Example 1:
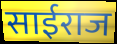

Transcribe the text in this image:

साईराज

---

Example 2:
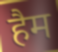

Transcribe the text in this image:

हैम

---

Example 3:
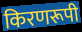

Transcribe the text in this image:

किरणरूपी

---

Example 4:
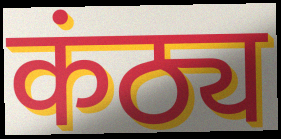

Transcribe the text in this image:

कंठ्य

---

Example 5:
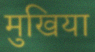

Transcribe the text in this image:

मुखिया